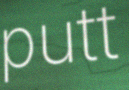
putt